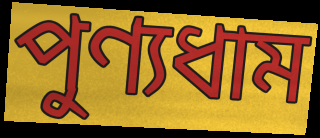
পুণ্যধাম